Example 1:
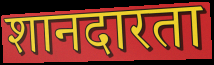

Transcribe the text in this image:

शानदारता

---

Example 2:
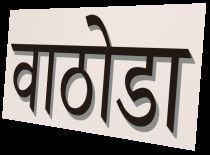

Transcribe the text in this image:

वाठोडा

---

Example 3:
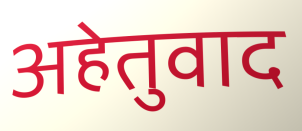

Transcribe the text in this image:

अहेतुवाद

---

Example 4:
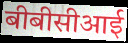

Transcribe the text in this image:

बीबीसीआई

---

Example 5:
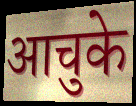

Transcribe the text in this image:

आचुके